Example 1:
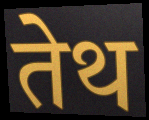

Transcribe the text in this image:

तेथ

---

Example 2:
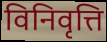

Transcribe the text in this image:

विनिवृत्ति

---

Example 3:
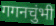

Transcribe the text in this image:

गगनचुंभी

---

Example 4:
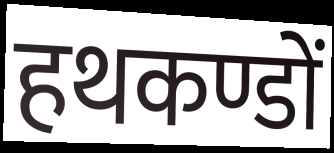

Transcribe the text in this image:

हथकण्डों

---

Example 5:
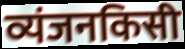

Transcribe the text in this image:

व्यंजनकिसी